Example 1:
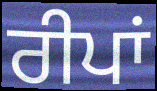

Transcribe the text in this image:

ਰੀਪਾਂ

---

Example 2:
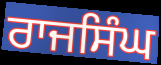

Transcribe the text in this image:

ਰਾਜਸਿੰਘ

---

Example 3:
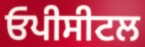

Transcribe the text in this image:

ਓਪੀਸੀਟਲ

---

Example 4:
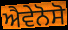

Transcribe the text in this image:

ਐਵੇਨੋਸੋ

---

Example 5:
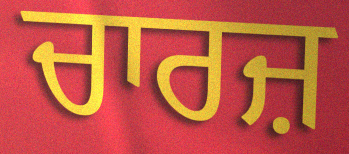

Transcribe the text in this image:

ਚਾਰਜ਼